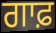
ਗਾਫ਼